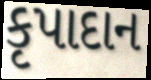
કૃપાદાન